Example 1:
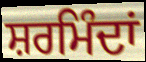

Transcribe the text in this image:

ਸ਼ਰਮਿੰਦਾਂ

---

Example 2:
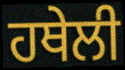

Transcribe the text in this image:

ਹਥੇਲੀ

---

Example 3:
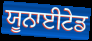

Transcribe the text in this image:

ਯੂਨਾਈਟੇਡ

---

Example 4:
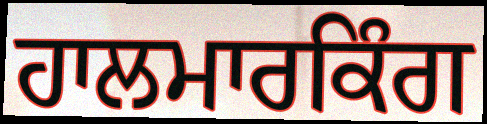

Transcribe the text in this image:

ਹਾਲਮਾਰਕਿੰਗ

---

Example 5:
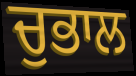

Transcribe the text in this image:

ਚੁਭਾਲ